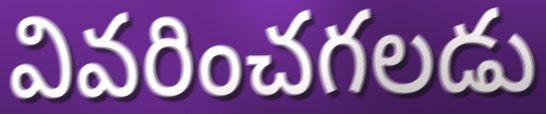
వివరించగలడు